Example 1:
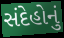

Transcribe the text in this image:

સંદેહોનું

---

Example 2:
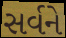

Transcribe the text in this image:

સર્વને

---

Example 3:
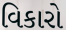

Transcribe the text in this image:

વિકારો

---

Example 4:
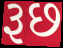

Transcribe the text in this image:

રૂછ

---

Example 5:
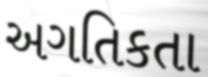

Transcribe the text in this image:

અગતિકતા